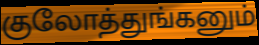
குலோத்துங்கனும்